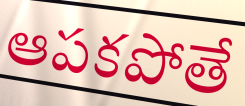
ఆపకపోతే